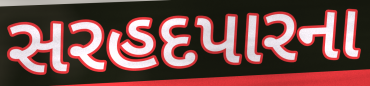
સરહદપારના